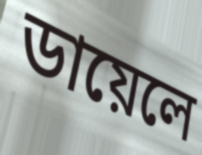
ডায়েলে